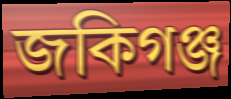
জকিগঞ্জ